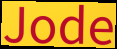
Jode